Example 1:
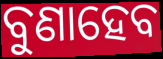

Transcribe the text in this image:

ବୁଣାହେବ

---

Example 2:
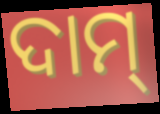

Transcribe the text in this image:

ଦାମ୍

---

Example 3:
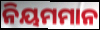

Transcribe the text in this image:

ନିୟମମାନ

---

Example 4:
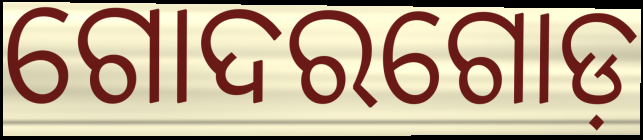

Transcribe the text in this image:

ଗୋଦରଗୋଡ଼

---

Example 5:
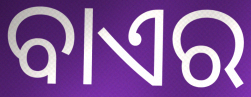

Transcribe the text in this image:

ବାଏର